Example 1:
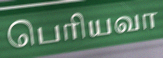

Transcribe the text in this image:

பெரியவா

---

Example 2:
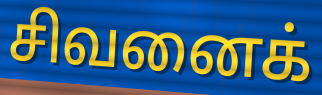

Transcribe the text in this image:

சிவனைக்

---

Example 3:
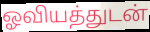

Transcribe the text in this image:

ஓவியத்துடன்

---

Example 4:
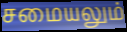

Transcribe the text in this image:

சமையலும்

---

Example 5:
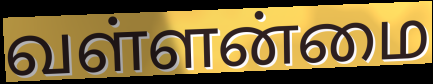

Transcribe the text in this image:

வள்ளன்மை